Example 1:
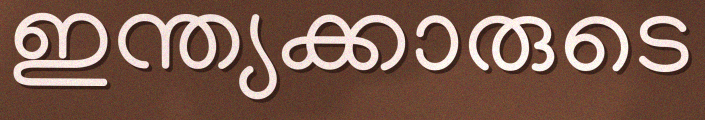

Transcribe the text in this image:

ഇന്ത്യക്കാരുടെ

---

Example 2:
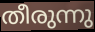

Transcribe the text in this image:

തീരുന്നു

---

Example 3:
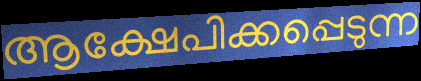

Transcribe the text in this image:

ആക്ഷേപിക്കപ്പെടുന്ന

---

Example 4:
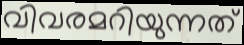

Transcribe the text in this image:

വിവരമറിയുന്നത്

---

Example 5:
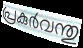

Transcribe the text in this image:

പ്രകുർവന്തു